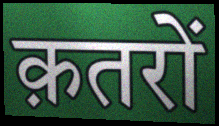
क़तरों